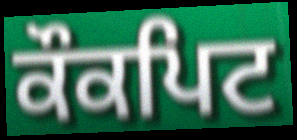
ਕੌਕਪਿਟ